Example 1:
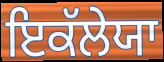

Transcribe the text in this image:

ਇਕੱਲੇਯਾ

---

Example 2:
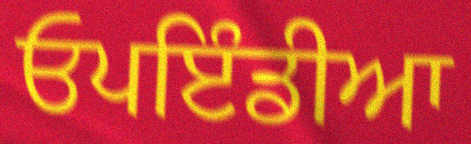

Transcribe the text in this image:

ਓਪਇੰਡੀਆ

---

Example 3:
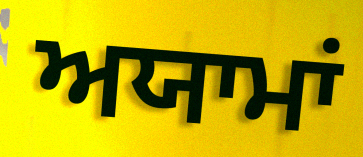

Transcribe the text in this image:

ਅਯਾਮਾਂ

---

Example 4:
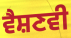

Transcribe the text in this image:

ਵੈਸ਼ਣਵੀ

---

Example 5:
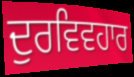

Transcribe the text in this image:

ਦੁਰਵਿਵਹਾਰ